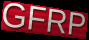
GFRP